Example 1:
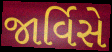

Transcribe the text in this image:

જાર્વિસે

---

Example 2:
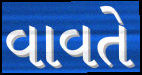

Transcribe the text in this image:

વાવતે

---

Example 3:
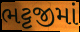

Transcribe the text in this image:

ભટ્ટજીમાં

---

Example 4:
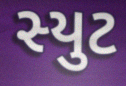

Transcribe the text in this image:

સ્યુટ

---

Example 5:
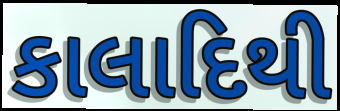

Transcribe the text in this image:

કાલાદિથી